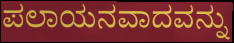
ಪಲಾಯನವಾದವನ್ನು